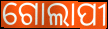
ଗୋଲାପୀ